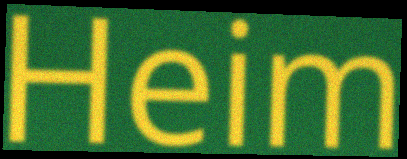
Heim